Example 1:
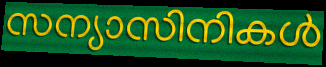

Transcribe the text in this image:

സന്യാസിനികൾ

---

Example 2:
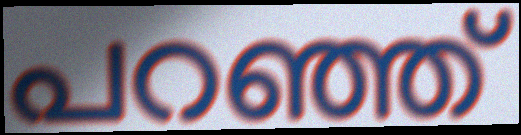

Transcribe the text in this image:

പറഞ്ഞ്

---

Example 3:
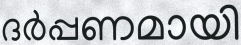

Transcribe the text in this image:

ദർപ്പണമായി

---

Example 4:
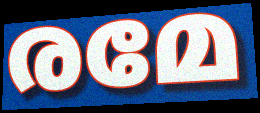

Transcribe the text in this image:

രമേ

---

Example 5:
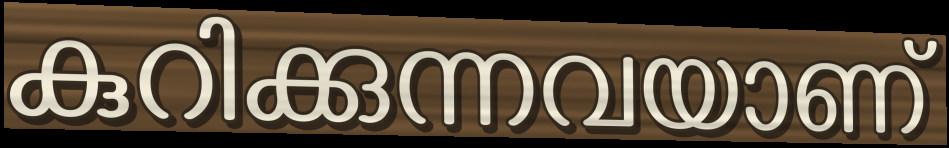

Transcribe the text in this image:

കുറിക്കുന്നവയാണ്